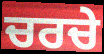
ਚਰਚੇ